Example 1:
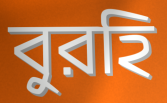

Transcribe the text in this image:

বুরহি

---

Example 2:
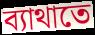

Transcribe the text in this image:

ব্যাথাতে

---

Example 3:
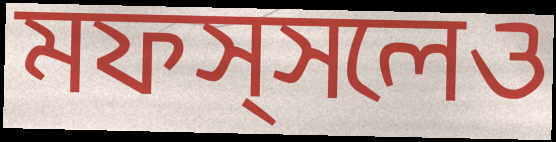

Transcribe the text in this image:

মফস্‌সলেও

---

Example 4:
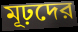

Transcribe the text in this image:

মূঢ়দের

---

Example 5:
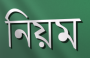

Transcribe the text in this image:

নিয়ম